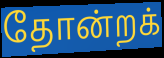
தோன்றக்